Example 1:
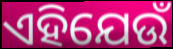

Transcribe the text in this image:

ଏହିଯେଉଁ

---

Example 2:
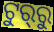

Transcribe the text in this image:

ଟୁର୍‍ରୁ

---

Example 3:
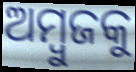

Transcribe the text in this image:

ଅମ୍ବୁଜକୁ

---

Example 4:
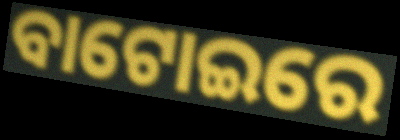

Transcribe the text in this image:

ବାଟୋଇରେ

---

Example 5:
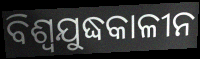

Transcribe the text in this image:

ବିଶ୍ୱଯୁଦ୍ଧକାଳୀନ